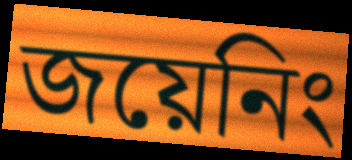
জয়েনিং